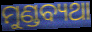
ମୁଣ୍ଡବ୍ୟଥା